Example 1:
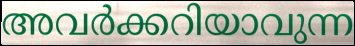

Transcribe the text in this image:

അവർക്കറിയാവുന്ന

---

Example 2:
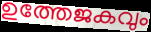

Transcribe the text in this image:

ഉത്തേജകവും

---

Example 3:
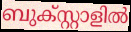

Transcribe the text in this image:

ബുക്സ്റ്റാളിൽ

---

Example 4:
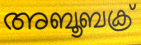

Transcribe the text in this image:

അബൂബക്ര്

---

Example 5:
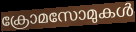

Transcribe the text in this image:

ക്രോമസോമുകൾ